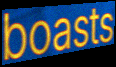
boasts